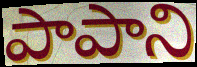
పాపాని